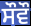
ਸੌਵੌ